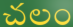
చలం